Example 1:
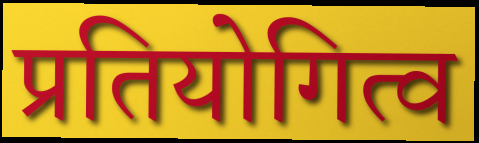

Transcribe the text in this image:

प्रतियोगित्व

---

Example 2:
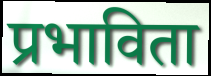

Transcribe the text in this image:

प्रभाविता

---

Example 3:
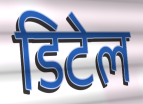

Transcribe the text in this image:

डिटेल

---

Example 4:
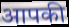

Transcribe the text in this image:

आपकी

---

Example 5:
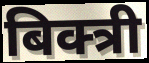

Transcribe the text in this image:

बिक्त्री